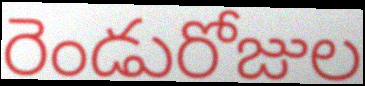
రెండురోజుల